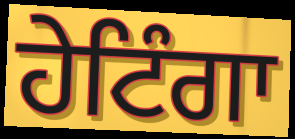
ਹੇਟਿੰਗਾ